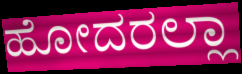
ಹೋದರಲ್ಲಾ